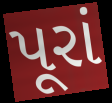
પૂરાં